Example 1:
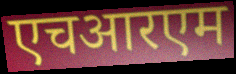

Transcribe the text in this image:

एचआरएम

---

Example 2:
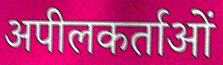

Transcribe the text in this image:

अपीलकर्ताओं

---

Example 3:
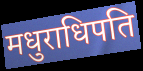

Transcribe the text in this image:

मधुराधिपति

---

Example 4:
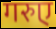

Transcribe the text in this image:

गरुए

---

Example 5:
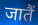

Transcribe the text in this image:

जातैं